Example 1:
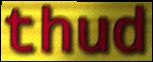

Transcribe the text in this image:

thud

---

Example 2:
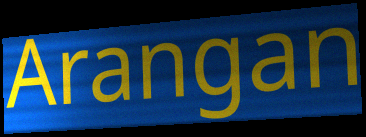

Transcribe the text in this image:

Arangan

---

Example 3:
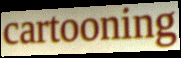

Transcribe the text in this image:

cartooning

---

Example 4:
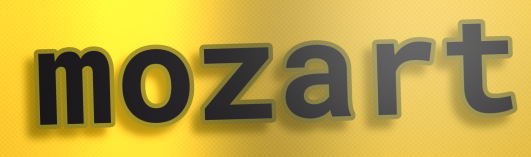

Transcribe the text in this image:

mozart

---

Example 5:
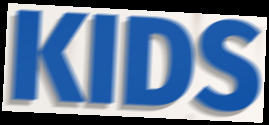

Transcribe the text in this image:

KIDS